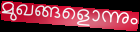
മുഖങ്ങളൊന്നും